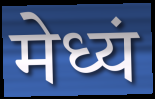
मेध्यं